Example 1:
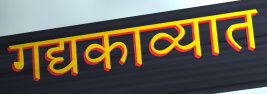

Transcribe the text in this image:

गद्यकाव्यात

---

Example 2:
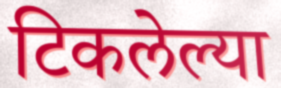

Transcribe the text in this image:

टिकलेल्या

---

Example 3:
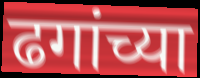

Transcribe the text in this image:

ढगांच्या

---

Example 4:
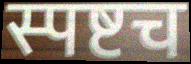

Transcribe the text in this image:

स्पष्टच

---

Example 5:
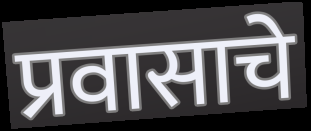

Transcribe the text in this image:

प्रवासाचे